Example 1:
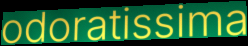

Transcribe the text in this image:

odoratissima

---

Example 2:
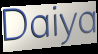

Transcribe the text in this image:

Daiya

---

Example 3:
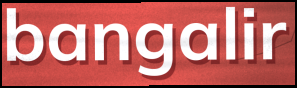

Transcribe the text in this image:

bangalir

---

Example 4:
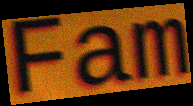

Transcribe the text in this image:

Fam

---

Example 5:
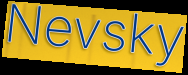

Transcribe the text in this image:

Nevsky